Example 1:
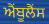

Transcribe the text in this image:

ਐੰਬੂਲੈਂਸ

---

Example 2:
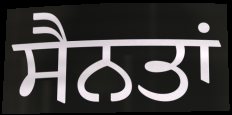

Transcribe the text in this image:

ਸੈਨਤਾਂ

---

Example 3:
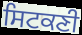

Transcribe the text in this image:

ਸਿਟਕਣੀ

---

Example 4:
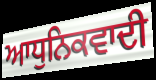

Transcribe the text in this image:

ਆਧੁਨਿਕਵਾਦੀ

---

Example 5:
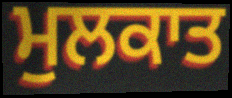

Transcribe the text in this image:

ਮੁਲਕਾਤ